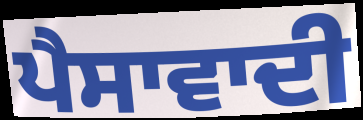
ਪੈਸਾਵਾਦੀ